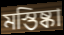
মস্তিষ্কা